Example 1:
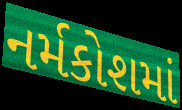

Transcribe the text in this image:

નર્મકોશમાં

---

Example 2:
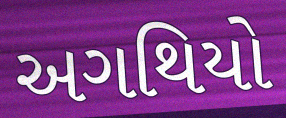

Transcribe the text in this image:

અગથિયો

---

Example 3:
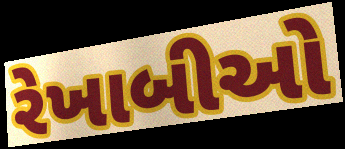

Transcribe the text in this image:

રેખાબીઓ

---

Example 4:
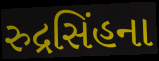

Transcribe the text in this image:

રુદ્રસિંહના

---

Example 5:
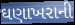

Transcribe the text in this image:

ઘણાખરાની